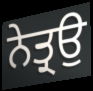
ਨੇਤ੍ਰਉ